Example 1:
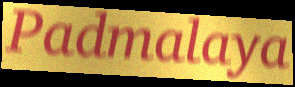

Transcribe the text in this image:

Padmalaya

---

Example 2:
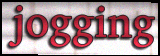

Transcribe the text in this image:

jogging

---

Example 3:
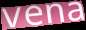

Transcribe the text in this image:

vena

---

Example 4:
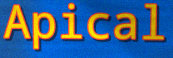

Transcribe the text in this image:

Apical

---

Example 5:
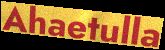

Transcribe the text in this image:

Ahaetulla